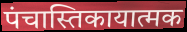
पंचास्तिकायात्मक